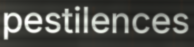
pestilences